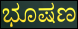
ಭೂಷಣ